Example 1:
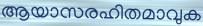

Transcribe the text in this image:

ആയാസരഹിതമാവുക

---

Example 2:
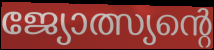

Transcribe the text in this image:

ജ്യോത്സ്യന്റെ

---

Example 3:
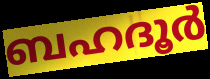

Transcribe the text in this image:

ബഹദൂർ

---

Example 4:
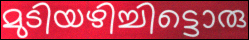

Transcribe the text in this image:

മുടിയഴിച്ചിട്ടൊരു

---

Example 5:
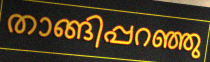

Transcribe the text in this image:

താങ്ങിപ്പറഞ്ഞു